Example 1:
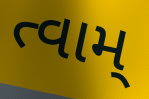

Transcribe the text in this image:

ત્વામ્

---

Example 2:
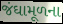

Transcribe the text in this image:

જંઘામૂળના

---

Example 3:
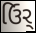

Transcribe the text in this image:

ઉિર્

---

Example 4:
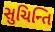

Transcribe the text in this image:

સુચિન્તિ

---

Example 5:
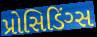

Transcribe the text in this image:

પ્રોસિડિંગ્સ